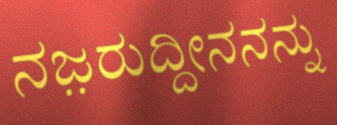
ನಜ಼ರುದ್ದೀನನನ್ನು